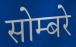
सोम्बरे